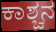
ಕಾಶ್ಚನ